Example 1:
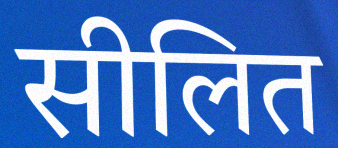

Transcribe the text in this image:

सीलित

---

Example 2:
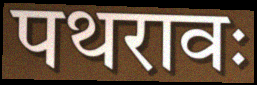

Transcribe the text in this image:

पथरावः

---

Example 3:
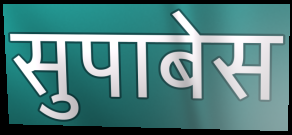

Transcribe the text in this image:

सुपाबेस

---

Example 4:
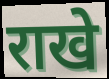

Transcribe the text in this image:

राखे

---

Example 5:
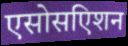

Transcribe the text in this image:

एसोसएिशन